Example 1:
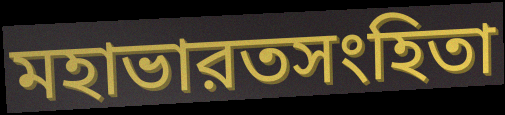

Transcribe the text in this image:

মহাভারতসংহিতা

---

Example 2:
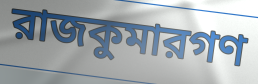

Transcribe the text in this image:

রাজকুমারগণ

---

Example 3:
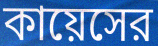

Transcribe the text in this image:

কায়েসের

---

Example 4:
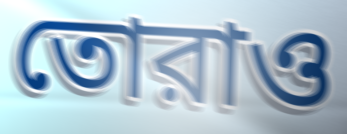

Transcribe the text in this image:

তোরাও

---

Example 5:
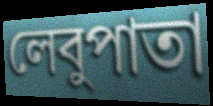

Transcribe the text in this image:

লেবুপাতা